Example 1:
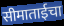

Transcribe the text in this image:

सीमाताईचा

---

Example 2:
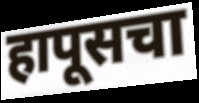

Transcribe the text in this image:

हापूसचा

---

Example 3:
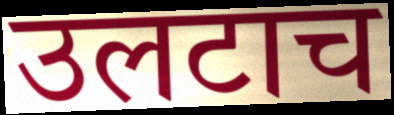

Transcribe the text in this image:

उलटाच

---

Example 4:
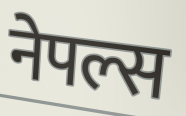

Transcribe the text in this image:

नेपल्स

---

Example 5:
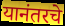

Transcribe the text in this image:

यानंतरचे